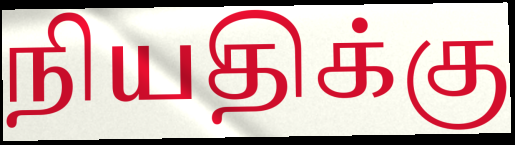
நியதிக்கு